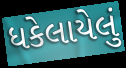
ધકેલાયેલું